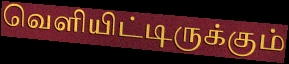
வெளியிட்டிருக்கும்